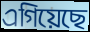
এগিয়েছে